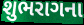
શુભરાગના